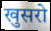
खुसरो